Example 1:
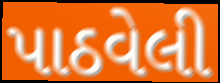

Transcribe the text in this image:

પાઠવેલી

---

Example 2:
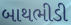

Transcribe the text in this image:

બાથભીડી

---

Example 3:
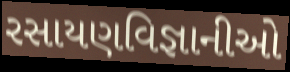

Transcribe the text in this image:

રસાયણવિજ્ઞાનીઓ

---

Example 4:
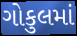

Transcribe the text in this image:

ગોકુલમાં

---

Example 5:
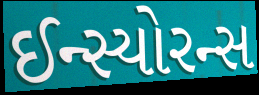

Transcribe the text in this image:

ઈન્સ્યોરન્સ